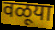
वळूया